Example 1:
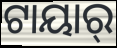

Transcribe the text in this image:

ଟାୟାର୍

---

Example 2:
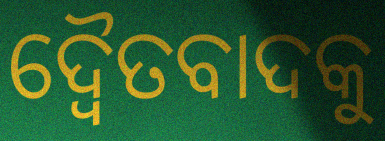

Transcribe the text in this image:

ଦ୍ୱୈତବାଦକୁ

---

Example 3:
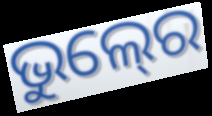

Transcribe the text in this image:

ଭୁଲ୍‍ରେ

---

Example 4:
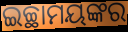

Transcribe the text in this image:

ଇଚ୍ଛାମୟଙ୍କର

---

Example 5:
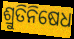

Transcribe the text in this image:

ଶ୍ରୁତିନିଷେଧ